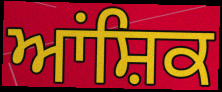
ਆਂਸ਼ਿਕ